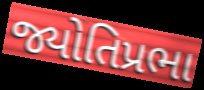
જ્યોતિપ્રભા